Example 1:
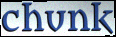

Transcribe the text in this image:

chunk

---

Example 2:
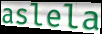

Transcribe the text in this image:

aslela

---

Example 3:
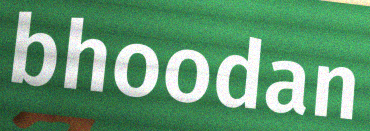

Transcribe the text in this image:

bhoodan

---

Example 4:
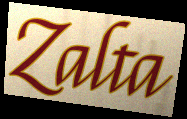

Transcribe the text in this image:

Zalta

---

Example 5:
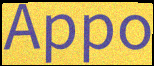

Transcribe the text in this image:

Appo